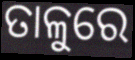
ତାଳୁରେ